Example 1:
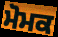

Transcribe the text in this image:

ਮੋਮਕ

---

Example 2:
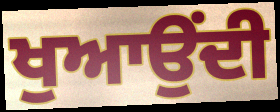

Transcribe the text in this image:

ਖੁਆਉਂਦੀ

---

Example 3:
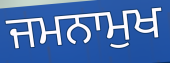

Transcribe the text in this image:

ਜਮਨਾਮੁਖ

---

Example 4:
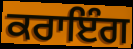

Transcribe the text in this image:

ਕਰਾਇੰਗ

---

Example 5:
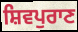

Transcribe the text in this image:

ਸ਼ਿਵਪੁਰਾਣ